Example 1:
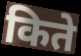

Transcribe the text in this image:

किते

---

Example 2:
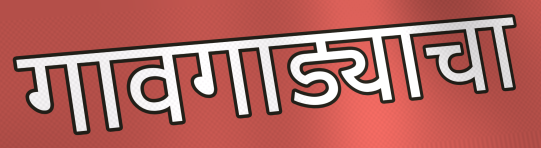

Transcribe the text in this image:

गावगाड्याचा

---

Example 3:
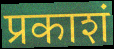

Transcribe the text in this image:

प्रकाशं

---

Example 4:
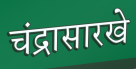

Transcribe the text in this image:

चंद्रासारखे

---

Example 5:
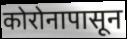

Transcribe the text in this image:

कोरोनापासून